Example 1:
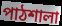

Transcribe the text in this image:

পাঠশালা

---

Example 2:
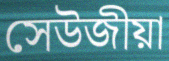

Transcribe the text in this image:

সেউজীয়া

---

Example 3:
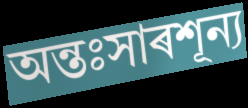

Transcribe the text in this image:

অন্তঃসাৰশূন্য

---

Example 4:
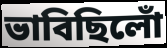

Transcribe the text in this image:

ভাবিছিলোঁ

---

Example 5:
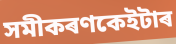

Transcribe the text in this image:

সমীকৰণকেইটাৰ